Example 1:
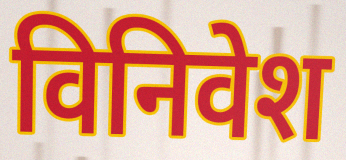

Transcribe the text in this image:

विनिवेश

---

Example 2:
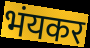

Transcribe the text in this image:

भंयकर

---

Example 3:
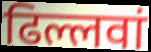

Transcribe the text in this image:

ढिल्लवां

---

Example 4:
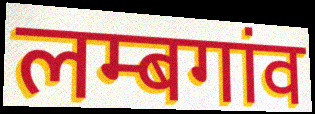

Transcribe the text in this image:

लम्बगांव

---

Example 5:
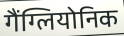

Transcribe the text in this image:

गैंग्लियोनिक